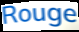
Rouge